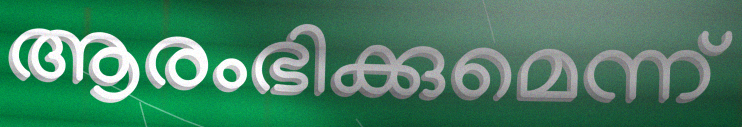
ആരംഭിക്കുമെന്ന്